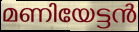
മണിയേട്ടൻ